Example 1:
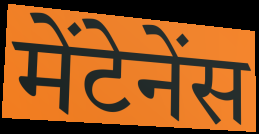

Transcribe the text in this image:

मेंटेनेंस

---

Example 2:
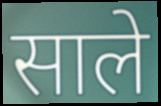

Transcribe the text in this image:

साले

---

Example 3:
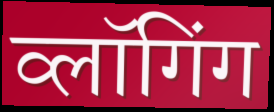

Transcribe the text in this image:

व्लॉगिंग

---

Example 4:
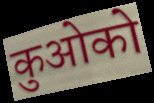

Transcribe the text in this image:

कुओको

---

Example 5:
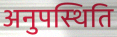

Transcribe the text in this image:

अनुपस्थिति